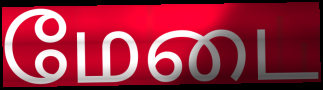
மேடை